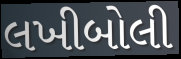
લખીબોલી